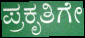
ಪ್ರಕೃತಿಗೇ